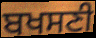
ਬਖਸਣੀ